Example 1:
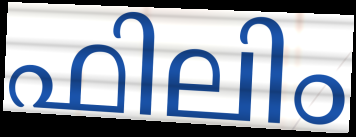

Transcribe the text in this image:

ഫിലിം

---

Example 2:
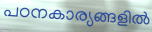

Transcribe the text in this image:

പഠനകാര്യങ്ങളിൽ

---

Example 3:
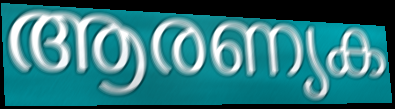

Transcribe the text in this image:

ആരണ്യക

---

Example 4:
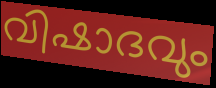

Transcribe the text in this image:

വിഷാദവും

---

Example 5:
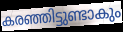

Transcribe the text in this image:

കരഞ്ഞിട്ടുണ്ടാകും